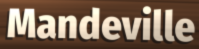
Mandeville